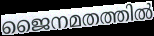
ജൈനമതത്തിൽ